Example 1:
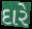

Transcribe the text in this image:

દારે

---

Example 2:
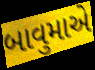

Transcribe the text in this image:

બાવુમાએ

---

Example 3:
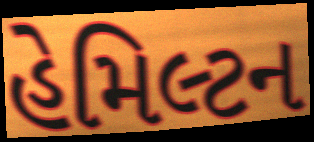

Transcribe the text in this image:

હેમિલ્ટન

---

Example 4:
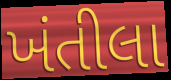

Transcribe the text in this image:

ખંતીલા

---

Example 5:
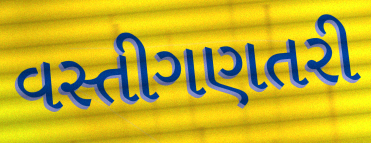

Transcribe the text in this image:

વસ્તીગણતરી